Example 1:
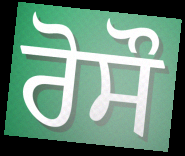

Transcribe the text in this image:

ਰੋਸੌ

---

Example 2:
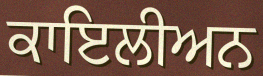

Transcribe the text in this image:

ਕਾਇਲੀਅਨ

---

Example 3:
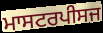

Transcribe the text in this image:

ਮਾਸਟਰਪੀਸਜ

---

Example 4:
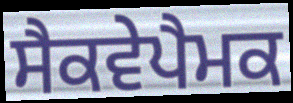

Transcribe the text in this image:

ਸੈਕਵੇਪੈਮਕ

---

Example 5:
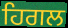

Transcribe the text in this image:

ਹਿਗਲ